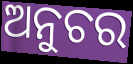
ଅନୁଚର